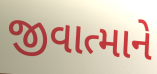
જીવાત્માને